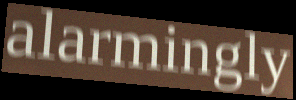
alarmingly